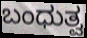
ಬಂಧುತ್ವ